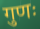
गुणः